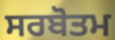
ਸਰਬੋਤਮ